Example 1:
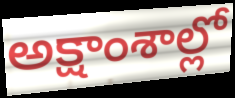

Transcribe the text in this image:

అక్షాంశాల్లో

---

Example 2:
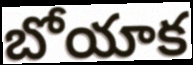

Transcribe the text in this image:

బోయాక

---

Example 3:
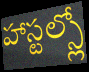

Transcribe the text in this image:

హాస్టల్స్లో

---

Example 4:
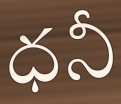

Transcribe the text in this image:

ధనీ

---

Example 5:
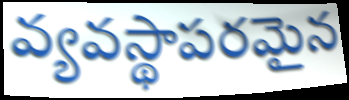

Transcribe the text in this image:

వ్యవస్థాపరమైన